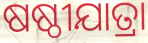
ଷଷ୍ଠୀଯାତ୍ରା